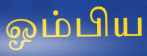
ஓம்பிய